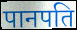
पानपति